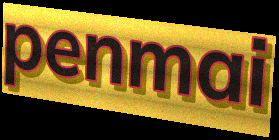
penmai